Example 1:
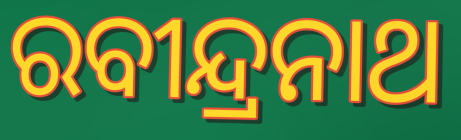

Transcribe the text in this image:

ରବୀନ୍ଦ୍ରନାଥ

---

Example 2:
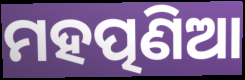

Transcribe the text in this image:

ମହତ୍ପଣିଆ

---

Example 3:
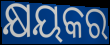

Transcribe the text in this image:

କ୍ଷୟକର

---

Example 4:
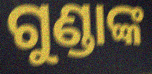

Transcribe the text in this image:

ଗୁଣ୍ଡାଙ୍କ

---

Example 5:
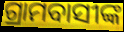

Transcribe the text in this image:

ଗ୍ରାମବାସୀଙ୍କ